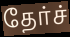
தேர்ச்